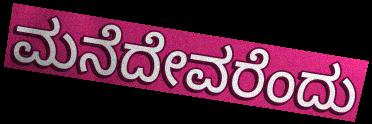
ಮನೆದೇವರೆಂದು